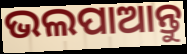
ଭଲପାଆନ୍ତୁ